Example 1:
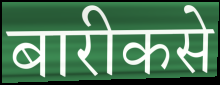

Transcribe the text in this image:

बारीकसे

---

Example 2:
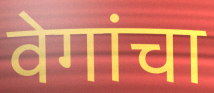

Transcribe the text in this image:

वेगांचा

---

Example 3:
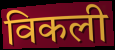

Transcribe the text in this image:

विकली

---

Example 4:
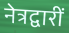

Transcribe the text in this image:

नेत्रद्वारीं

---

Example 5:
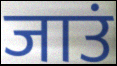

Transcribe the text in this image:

जाउं